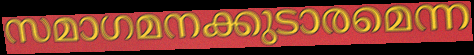
സമാഗമനക്കുടാരമെന്ന